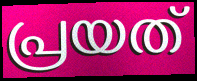
പ്രയത്